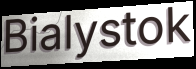
Bialystok